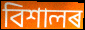
বিশালৰ